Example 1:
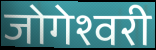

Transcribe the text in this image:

जोगेश्वरी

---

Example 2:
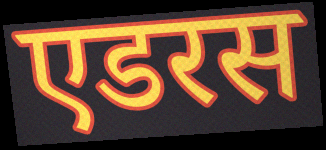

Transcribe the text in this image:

एडरस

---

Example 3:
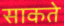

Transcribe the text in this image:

साकते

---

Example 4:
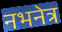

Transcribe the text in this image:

नभनेत्र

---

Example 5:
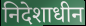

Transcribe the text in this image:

निदेशाधीन